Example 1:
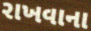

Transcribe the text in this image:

રાખવાના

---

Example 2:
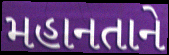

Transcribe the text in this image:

મહાનતાને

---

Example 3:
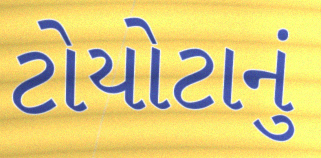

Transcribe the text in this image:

ટોયોટાનું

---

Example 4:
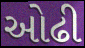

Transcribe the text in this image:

ઓઢી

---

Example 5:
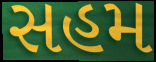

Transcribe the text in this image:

સહમ